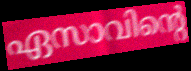
ഏസാവിന്റെ